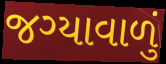
જગ્યાવાળું